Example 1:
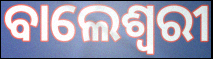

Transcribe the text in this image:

ବାଲେଶ୍ୱରୀ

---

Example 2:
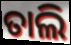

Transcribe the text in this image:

ତାଲି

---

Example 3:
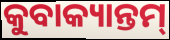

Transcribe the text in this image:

କୁବାକ୍ୟାନ୍ତମ୍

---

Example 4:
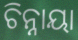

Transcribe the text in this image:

ଚିନ୍ନାୟା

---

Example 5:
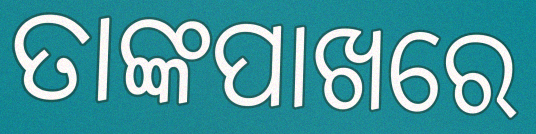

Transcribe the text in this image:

ତାଙ୍କପାଖରେ